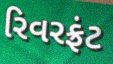
રિવરફ્રંટ